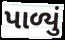
પાળ્યું